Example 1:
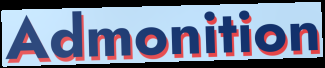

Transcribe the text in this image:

Admonition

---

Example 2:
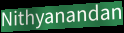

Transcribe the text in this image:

Nithyanandan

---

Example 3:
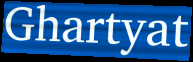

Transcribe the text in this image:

Ghartyat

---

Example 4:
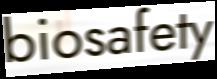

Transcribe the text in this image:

biosafety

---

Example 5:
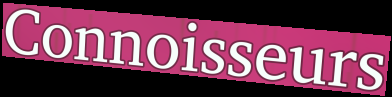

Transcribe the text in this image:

Connoisseurs